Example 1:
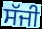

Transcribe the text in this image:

ਸੱਜੀ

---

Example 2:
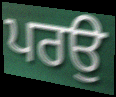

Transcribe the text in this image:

ਪਰਉ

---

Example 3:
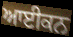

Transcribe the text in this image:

ਆਈਕਨ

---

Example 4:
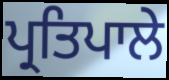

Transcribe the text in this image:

ਪ੍ਰਤਿਪਾਲੇ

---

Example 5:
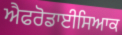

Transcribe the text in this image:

ਐਫਰੋਡਾਈਸਿਆਕ